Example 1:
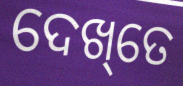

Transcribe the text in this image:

ଦେଖ୍‌ତେ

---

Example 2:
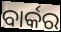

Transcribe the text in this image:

ବାର୍କର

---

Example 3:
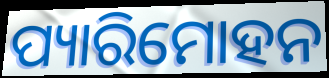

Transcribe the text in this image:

ପ୍ୟାରିମୋହନ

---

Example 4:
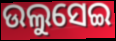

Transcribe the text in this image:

ଉଲୁସେଇ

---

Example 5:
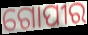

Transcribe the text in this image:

ଗୋପୀର